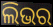
ଲିଭର